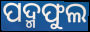
ପଦ୍ମଫୁଲ